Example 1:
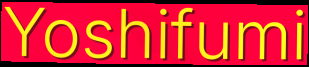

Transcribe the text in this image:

Yoshifumi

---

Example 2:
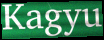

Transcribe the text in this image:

Kagyu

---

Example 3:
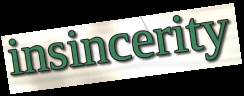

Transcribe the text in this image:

insincerity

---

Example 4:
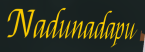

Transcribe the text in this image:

Nadunadapu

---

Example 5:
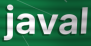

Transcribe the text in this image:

javal